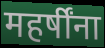
महर्षींना